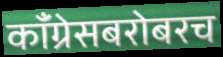
काँग्रेसबरोबरच